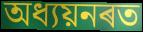
অধ্যয়নৰত